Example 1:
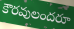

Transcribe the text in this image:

కౌరవులందరూ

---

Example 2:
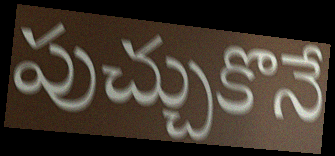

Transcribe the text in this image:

పుచ్చుకొనే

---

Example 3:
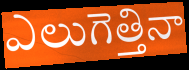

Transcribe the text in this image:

ఎలుగెత్తినా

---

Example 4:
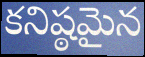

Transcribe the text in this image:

కనిష్ఠమైన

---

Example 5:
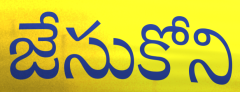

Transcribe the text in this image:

జేసుకోని